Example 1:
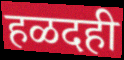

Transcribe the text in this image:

हळदही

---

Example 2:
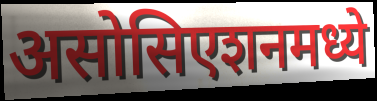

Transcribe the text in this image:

असोसिएशनमध्ये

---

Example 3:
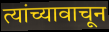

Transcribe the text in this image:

त्यांच्यावाचून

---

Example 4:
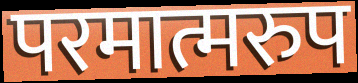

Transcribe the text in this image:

परमात्मरुप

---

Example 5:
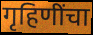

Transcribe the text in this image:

गृहिणींचा